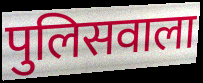
पुलिसवाला